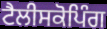
ਟੈਲੀਸਕੋਪਿੰਗ